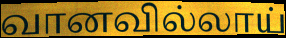
வானவில்லாய்